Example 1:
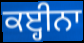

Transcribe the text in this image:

ਕੲ੍ਹੀਨਾ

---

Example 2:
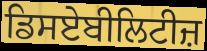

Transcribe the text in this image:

ਡਿਸਏਬੀਲਿਟੀਜ਼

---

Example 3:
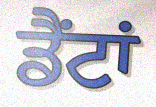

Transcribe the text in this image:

ਡੈਂਟਾਂ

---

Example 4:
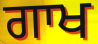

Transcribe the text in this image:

ਗਾਖ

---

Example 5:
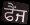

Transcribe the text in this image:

ਫੈਂਜ